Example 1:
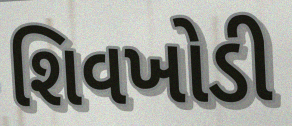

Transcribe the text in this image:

શિવખોડી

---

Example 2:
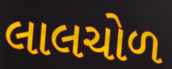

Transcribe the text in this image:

લાલચોળ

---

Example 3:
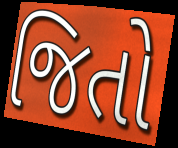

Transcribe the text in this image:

જિતો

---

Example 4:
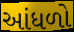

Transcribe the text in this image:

આંધળો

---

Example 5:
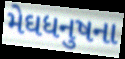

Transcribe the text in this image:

મેઘધનુષના